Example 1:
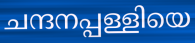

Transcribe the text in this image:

ചന്ദനപ്പള്ളിയെ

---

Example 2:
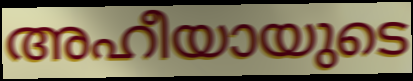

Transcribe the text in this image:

അഹീയായുടെ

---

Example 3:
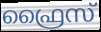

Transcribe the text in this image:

ഫ്രൈസ്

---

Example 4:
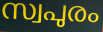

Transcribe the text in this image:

സ്വപുരം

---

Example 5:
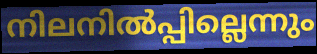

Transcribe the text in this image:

നിലനിൽപ്പില്ലെന്നും